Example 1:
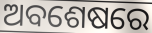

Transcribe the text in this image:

ଅବଶେଷରେ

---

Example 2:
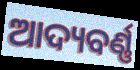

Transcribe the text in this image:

ଆଦ୍ୟବର୍ଣ୍ଣ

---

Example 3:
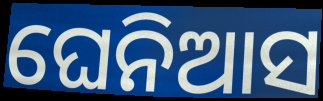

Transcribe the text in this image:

ଘେନିଆସ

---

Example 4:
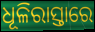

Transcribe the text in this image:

ଧୂଳିରାସ୍ତାରେ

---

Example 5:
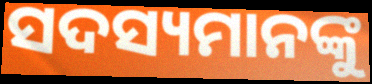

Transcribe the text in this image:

ସଦସ୍ୟମାନଙ୍କୁ